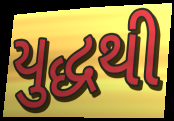
યુદ્ધથી